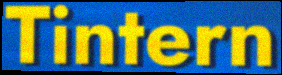
Tintern